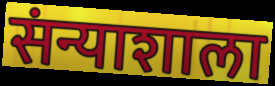
संन्याशाला